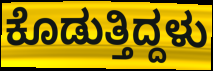
ಕೊಡುತ್ತಿದ್ದಳು